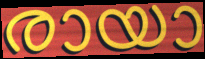
രായാ